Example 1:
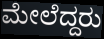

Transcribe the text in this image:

ಮೇಲೆದ್ದರು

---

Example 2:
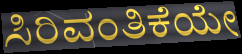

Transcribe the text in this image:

ಸಿರಿವಂತಿಕೆಯೇ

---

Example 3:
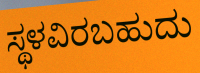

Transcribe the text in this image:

ಸ್ಥಳವಿರಬಹುದು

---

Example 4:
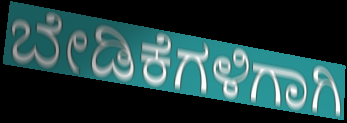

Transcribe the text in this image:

ಬೇಡಿಕೆಗಳಿಗಾಗಿ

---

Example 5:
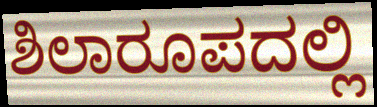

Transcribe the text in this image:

ಶಿಲಾರೂಪದಲ್ಲಿ